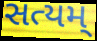
સત્યમ્